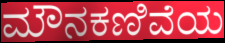
ಮೌನಕಣಿವೆಯ